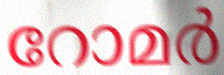
റോമർ